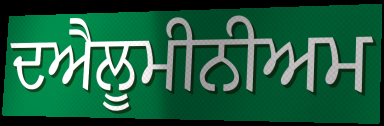
ਦਐਲੂਮੀਨੀਅਮ